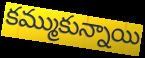
కమ్ముకున్నాయి